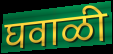
घवाळी